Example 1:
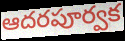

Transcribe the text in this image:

ఆదరపూర్వక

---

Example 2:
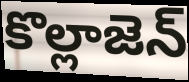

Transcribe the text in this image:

కొల్లాజెన్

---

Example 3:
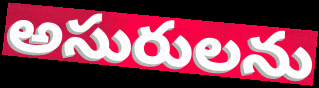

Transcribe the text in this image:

అసురులను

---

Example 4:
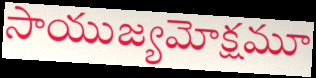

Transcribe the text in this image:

సాయుజ్యమోక్షమూ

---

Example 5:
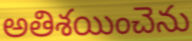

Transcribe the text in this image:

అతిశయించెను